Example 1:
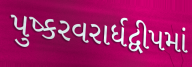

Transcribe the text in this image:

પુષ્કરવરાર્ધદ્વીપમાં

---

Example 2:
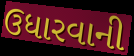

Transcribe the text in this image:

ઉધારવાની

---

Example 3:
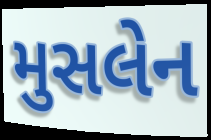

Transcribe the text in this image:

મુસલેન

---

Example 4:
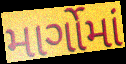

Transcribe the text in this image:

માર્ગોમાં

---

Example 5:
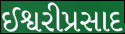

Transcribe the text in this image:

ઈશ્વરીપ્રસાદ